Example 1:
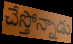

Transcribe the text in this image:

చేస్తోన్నాడు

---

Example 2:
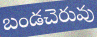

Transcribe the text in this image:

బండచెరువు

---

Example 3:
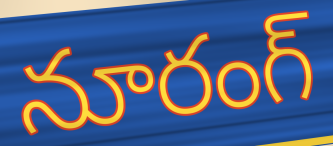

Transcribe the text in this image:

నూరంగ్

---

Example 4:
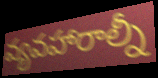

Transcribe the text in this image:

వ్యవహారాల్నీ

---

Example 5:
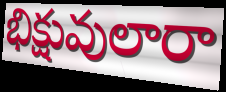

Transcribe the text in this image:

భిక్షువులారా